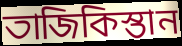
তাজিকিস্তান